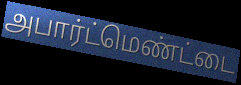
அபார்ட்மெண்ட்டை